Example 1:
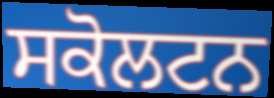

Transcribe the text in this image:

ਸਕੋਲਟਨ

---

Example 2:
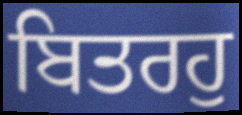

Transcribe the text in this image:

ਬਿਤਰਹੁ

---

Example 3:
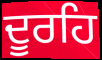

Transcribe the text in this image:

ਦੂਰਹਿ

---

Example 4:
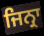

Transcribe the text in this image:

ਜਿਨ੍ਰਾ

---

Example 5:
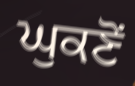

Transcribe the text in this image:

ਘੁਕਣੋਂ